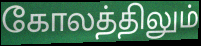
கோலத்திலும்